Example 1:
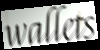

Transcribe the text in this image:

wallets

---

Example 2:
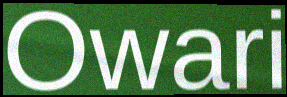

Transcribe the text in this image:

Owari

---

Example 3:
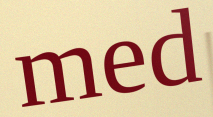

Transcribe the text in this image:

med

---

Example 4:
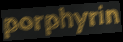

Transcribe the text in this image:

porphyrin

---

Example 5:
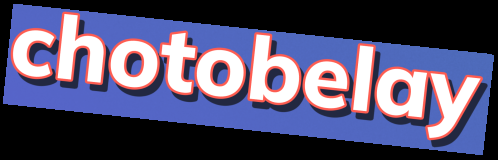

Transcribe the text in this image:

chotobelay